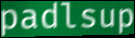
padlsup